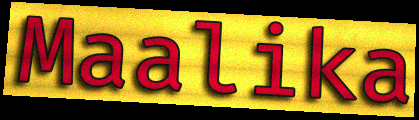
Maalika